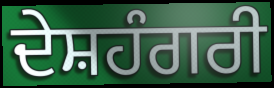
ਦੇਸ਼ਹੰਗਰੀ